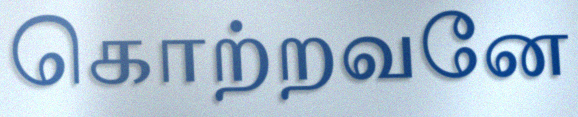
கொற்றவனே